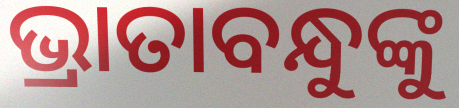
ଭ୍ରାତାବନ୍ଧୁଙ୍କୁ